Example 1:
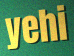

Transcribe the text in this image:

yehi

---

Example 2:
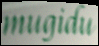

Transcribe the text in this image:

mugidu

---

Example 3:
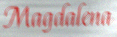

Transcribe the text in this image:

Magdalena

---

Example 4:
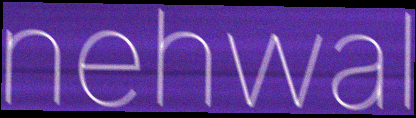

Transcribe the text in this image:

nehwal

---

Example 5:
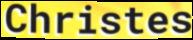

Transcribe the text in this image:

Christes